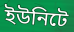
ইউনিটে